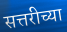
सत्तरीच्या